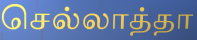
செல்லாத்தா